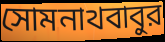
সোমনাথবাবুর